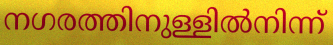
നഗരത്തിനുള്ളിൽനിന്ന്